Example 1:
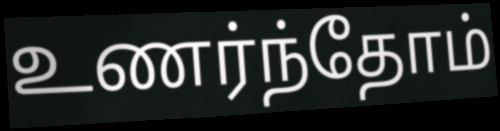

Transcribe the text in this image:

உணர்ந்தோம்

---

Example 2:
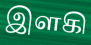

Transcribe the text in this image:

இளகி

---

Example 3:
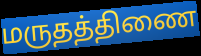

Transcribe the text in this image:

மருதத்திணை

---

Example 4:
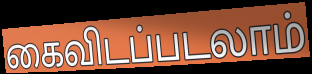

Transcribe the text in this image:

கைவிடப்படலாம்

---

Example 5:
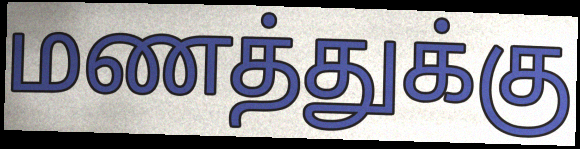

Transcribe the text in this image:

மணத்துக்கு